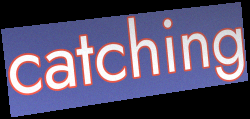
catching